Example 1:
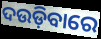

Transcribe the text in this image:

ଦଉଡ଼ିବାରେ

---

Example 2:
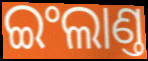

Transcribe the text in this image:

ଇଂଲାଣ୍ତ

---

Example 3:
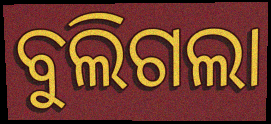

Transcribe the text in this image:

ବୁଲିଗଲା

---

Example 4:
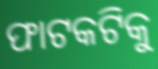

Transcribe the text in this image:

ଫାଟକଟିକୁ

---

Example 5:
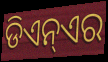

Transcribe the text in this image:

ଡିଏନ୍ଏର